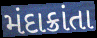
મંદાક્રાંતા